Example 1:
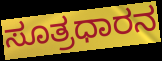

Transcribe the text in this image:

ಸೂತ್ರಧಾರನ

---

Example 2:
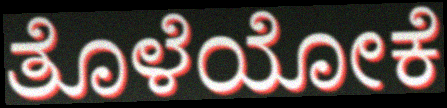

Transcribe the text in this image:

ತೊಳೆಯೋಕೆ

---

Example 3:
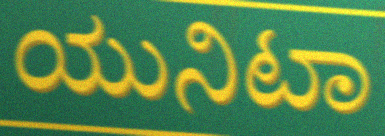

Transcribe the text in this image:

ಯುನಿಟಾ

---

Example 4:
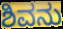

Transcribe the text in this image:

ಶಿವನು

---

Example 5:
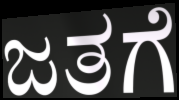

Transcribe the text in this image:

ಜತಗೆ